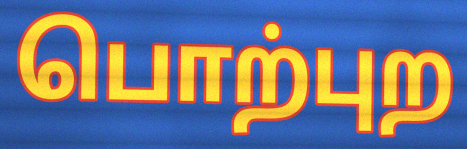
பொற்புற